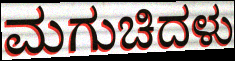
ಮಗುಚಿದಳು